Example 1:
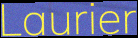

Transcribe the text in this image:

Laurier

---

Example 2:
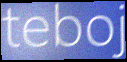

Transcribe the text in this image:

teboj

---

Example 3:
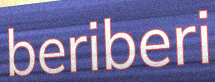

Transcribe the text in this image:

beriberi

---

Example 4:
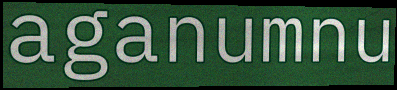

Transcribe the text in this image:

aganumnu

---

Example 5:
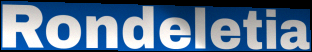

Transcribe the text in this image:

Rondeletia